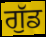
ਗੁੱਡ